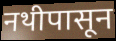
नथीपासून